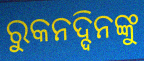
ରୁକନଦ୍ଦିନଙ୍କୁ